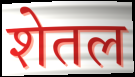
शेतल